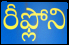
రీఫ్లోని